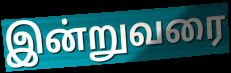
இன்றுவரை